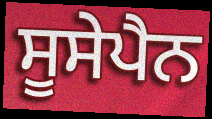
ਸੂਸੇਪੈਨ